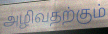
அழிவதற்கும்